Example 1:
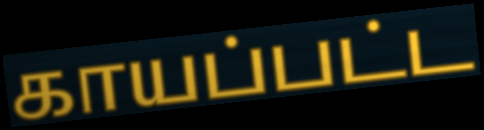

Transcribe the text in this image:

காயப்பட்ட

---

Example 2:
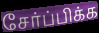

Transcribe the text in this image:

சேர்ப்பிக்க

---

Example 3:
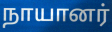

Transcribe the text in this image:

நாயானர்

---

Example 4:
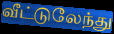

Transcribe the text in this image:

வீட்டுலேந்து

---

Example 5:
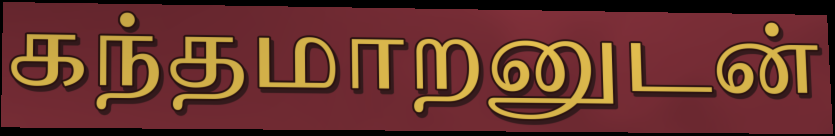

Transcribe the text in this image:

கந்தமாறனுடன்